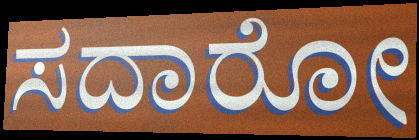
ಸದಾರೋ